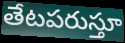
తేటపరుస్తూ